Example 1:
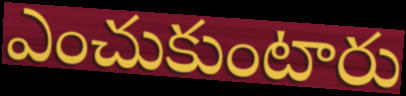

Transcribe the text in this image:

ఎంచుకుంటారు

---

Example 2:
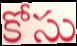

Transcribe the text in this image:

కోసు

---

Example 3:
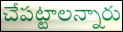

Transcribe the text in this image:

చేపట్టాలన్నారు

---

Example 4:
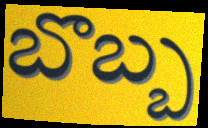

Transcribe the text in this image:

బొబ్బ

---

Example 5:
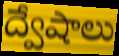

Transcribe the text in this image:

ద్వేషాలు